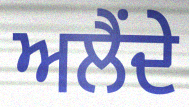
ਅਲੈਂਦੇ